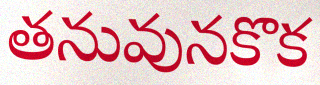
తనువునకొక